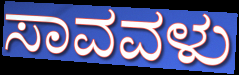
ಸಾವವಳು